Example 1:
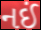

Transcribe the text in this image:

નઈં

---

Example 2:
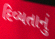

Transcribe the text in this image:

દિવ્યતાનું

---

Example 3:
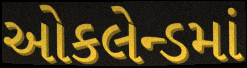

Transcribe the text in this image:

ઓકલેન્ડમાં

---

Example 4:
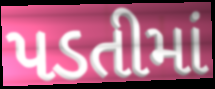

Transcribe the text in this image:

પડતીમાં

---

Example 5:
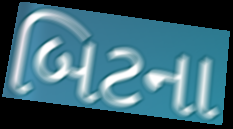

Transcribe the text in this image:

બિટના